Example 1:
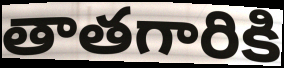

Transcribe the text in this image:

తాతగారికి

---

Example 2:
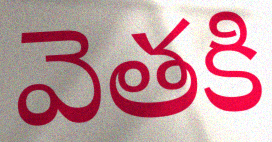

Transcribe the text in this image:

వెతకి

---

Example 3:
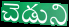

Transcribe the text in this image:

చెడుని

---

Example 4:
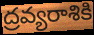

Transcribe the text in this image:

ద్రవ్యరాశికి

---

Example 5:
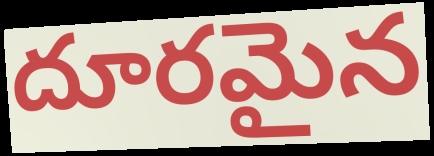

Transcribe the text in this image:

దూరమైన